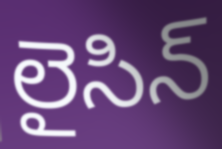
లైసిన్